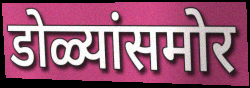
डोळ्यांसमोर